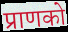
प्राणको